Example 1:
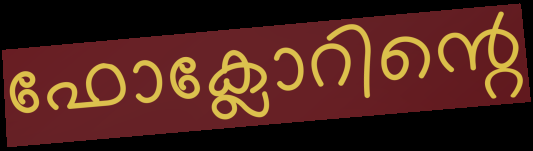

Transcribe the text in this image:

ഫോക്ലോറിന്റെ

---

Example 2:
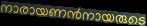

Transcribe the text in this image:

നാരായണൻനായരുടെ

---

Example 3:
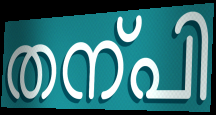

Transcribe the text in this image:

തന്പി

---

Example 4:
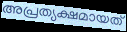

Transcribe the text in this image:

അപ്രത്യക്ഷമായത്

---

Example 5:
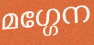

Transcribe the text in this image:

മഗ്ഗേന